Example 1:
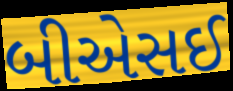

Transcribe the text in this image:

બીએસઈ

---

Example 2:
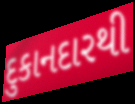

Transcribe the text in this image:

દુકાનદારથી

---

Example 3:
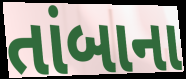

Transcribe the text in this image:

તાંબાના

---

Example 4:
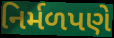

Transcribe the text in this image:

નિર્મળપણે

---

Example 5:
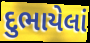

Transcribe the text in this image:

દુભાયેલાં